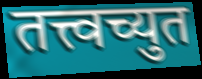
तत्त्वच्युत